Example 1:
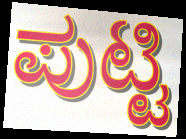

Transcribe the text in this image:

ಪುಟ್ಟಿ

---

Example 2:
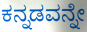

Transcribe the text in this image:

ಕನ್ನಡವನ್ನೇ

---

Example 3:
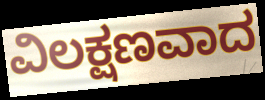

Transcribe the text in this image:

ವಿಲಕ್ಷಣವಾದ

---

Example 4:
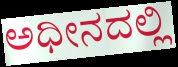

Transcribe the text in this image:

ಅಧೀನದಲ್ಲಿ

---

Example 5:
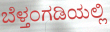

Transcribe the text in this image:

ಬೆಳ್ತಂಗಡಿಯಲ್ಲಿ